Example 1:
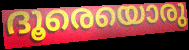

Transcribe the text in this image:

ദൂരെയൊരു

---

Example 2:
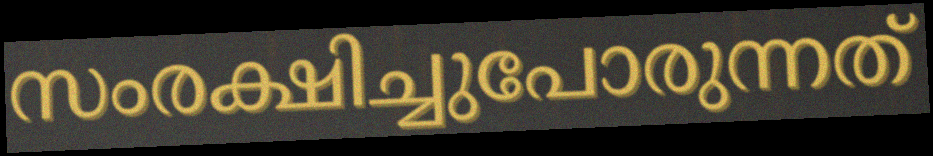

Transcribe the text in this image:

സംരക്ഷിച്ചുപോരുന്നത്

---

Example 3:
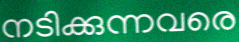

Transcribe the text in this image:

നടിക്കുന്നവരെ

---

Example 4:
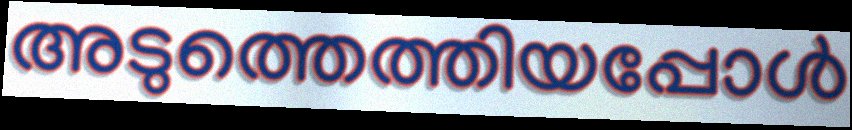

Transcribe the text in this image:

അടുത്തെത്തിയപ്പോൾ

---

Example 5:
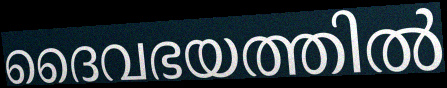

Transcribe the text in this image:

ദൈവഭയത്തിൽ